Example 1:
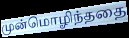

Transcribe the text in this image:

முன்மொழிந்ததை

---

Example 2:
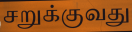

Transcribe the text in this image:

சறுக்குவது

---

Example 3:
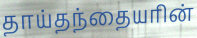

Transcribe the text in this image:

தாய்தந்தையரின்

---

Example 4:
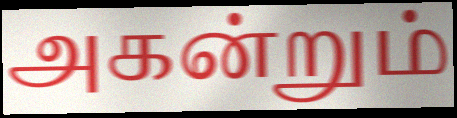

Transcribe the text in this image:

அகன்றும்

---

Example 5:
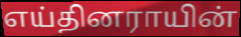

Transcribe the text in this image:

எய்தினராயின்